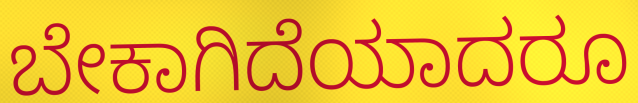
ಬೇಕಾಗಿದೆಯಾದರೂ